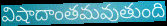
విషాదాంతమవుతుంది